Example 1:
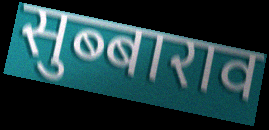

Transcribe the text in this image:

सुब्‍बाराव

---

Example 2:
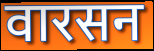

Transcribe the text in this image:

वारसन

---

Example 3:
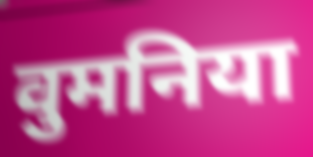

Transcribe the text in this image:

वुमनिया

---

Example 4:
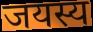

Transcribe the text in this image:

जयस्य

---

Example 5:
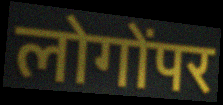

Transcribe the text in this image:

लोगोंपर